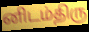
னிடம்திரு